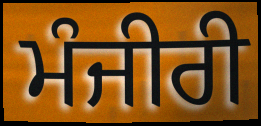
ਮੰਜੀਰੀ